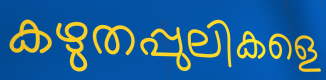
കഴുതപ്പുലികളെ